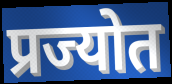
प्रज्योत